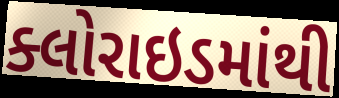
ક્લોરાઇડમાંથી